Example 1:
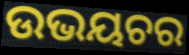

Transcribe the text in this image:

ଉଭୟଚର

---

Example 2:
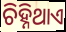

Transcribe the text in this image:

ଚିହ୍ନିଥାଏ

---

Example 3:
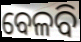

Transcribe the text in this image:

ବେଳବି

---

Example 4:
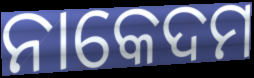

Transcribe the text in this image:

ନାକେଦମ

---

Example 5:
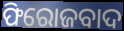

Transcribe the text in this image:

ଫିରୋଜବାଦ